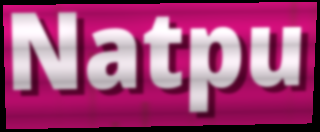
Natpu